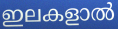
ഇലകളാൽ